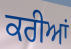
ਕਰੀਆਂ